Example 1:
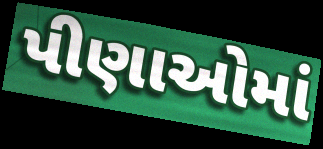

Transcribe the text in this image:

પીણાઓમાં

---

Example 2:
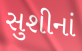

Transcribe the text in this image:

સુશીનાં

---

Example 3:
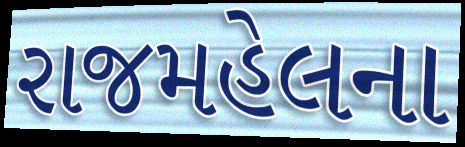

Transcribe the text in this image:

રાજમહેલના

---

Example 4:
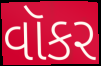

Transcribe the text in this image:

વૉકર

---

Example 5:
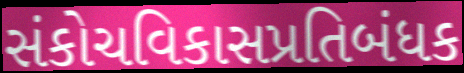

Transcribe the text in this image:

સંકોચવિકાસપ્રતિબંધક